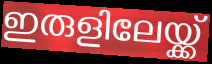
ഇരുളിലേയ്ക്ക്